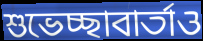
শুভেচ্ছাবার্তাও